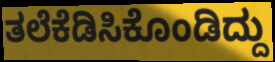
ತಲೆಕೆಡಿಸಿಕೊಂಡಿದ್ದು